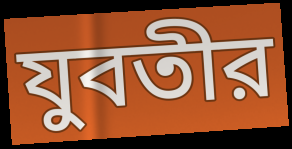
যুবতীর